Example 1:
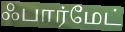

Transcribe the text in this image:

ஃபார்மேட்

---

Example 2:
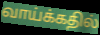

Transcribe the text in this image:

வாய்க்கதில்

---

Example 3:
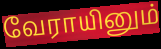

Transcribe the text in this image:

வேராயினும்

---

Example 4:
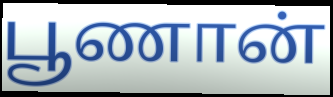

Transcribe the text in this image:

பூணான்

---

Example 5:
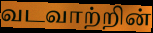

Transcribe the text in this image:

வடவாற்றின்